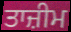
ਤਾਜ਼ੀਮ